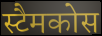
स्टैमकोस